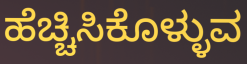
ಹೆಚ್ಚಿಸಿಕೊಳ್ಳುವ